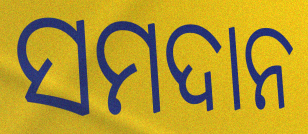
ସମଦାନ